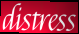
distress